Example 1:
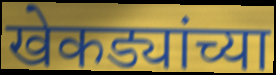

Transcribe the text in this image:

खेकड्यांच्या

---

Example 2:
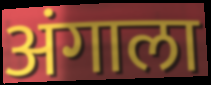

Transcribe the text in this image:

अंगाला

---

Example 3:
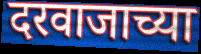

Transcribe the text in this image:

दरवाजाच्या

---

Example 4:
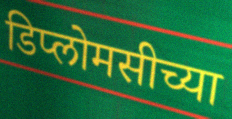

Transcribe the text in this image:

डिप्लोमसीच्या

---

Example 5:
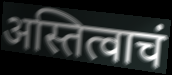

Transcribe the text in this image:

अस्तित्वाचं